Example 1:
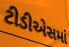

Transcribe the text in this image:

ટીડીએસમાં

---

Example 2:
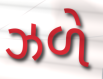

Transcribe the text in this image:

ઝળે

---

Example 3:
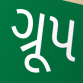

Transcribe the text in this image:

ગ્રૂપ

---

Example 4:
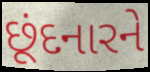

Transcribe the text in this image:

છૂંદનારને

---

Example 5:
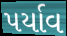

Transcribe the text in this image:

પર્યાવ